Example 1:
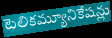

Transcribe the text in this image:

టెలికమ్యూనికేషన్లు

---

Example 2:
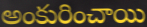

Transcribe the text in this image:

అంకురించాయి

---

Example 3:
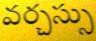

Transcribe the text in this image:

వర్చస్సు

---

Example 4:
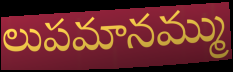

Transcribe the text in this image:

లుపమానమ్ము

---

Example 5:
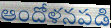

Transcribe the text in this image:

ఆందోళనపడి